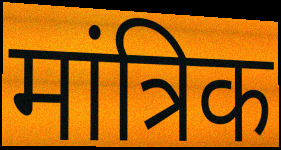
मांत्रिक